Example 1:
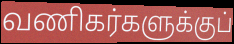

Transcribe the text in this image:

வணிகர்களுக்குப்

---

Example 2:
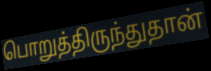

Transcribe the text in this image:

பொறுத்திருந்துதான்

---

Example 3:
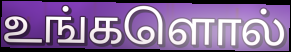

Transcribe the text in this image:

உங்களொல்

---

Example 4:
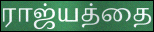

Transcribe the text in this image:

ராஜ்யத்தை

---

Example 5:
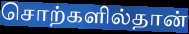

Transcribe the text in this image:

சொற்களில்தான்